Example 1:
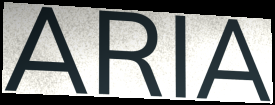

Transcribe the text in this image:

ARIA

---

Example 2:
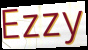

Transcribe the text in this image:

Ezzy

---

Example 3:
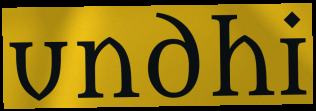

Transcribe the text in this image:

undhi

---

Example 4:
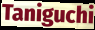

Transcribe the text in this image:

Taniguchi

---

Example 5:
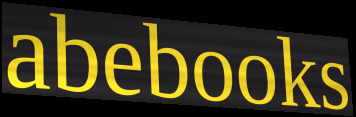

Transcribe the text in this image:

abebooks